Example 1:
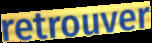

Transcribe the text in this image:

retrouver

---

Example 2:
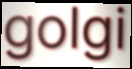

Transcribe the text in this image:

golgi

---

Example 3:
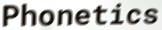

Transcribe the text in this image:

Phonetics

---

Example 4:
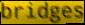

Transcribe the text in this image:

bridges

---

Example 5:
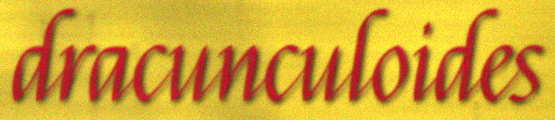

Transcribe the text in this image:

dracunculoides